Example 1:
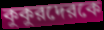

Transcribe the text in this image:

কুকুরদেরকে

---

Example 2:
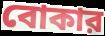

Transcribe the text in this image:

বোকার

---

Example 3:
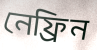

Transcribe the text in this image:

নেফ্রিন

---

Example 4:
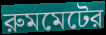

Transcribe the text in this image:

রুমমেটের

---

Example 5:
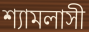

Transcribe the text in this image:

শ্যামলাসী